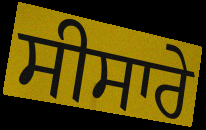
ਸੀਸਾਰੇ